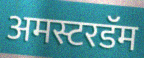
अमस्टरडॅम